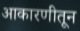
आकारणीतून